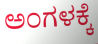
ಅಂಗಳಕ್ಕೆ